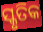
ସ୍କୃତିକ